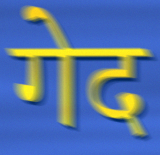
गेद